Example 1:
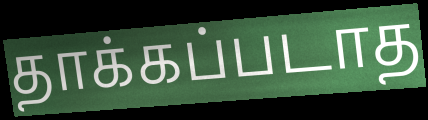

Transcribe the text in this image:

தாக்கப்படாத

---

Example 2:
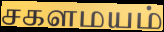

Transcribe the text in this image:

சகளமயம்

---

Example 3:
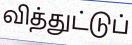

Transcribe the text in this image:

வித்துட்டுப்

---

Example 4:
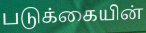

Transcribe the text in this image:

படுக்கையின்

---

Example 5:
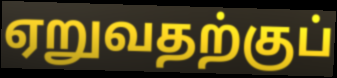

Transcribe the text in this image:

ஏறுவதற்குப்